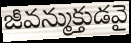
జీవన్ముక్తుడవై